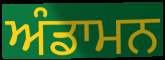
ਅੰਡਾਮਨ